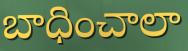
బాధించాలా